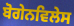
ਬੋਗੇਨਵਿਲੇਸ